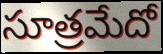
సూత్రమేదో